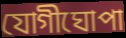
যোগীঘোপা